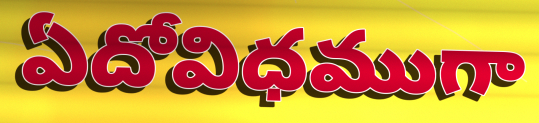
ఏదోవిధముగా